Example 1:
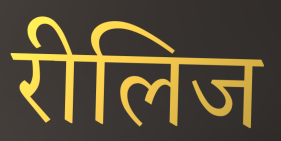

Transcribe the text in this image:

रीलिज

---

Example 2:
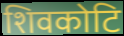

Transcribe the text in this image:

शिवकोटि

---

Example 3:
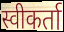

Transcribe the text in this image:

स्वीकर्ता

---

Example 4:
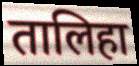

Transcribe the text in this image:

तालिहा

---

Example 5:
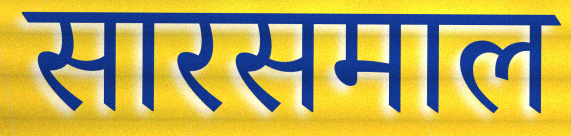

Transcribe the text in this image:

सारसमाल